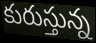
కురుస్తున్న